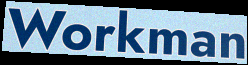
Workman